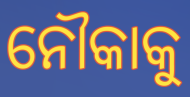
ନୌକାକୁ